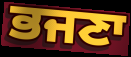
ਭਜਣਾ